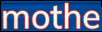
mothe